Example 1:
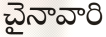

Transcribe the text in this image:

చైనావారి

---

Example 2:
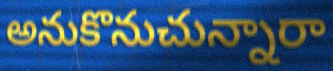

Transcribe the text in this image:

అనుకొనుచున్నారా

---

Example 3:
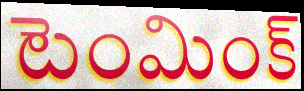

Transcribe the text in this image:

టెంమింక్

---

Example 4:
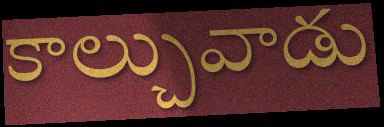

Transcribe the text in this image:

కాల్చువాడు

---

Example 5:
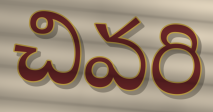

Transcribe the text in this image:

చివరి